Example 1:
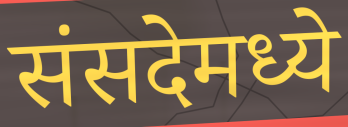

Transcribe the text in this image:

संसदेमध्ये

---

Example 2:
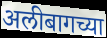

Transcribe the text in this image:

अलीबागच्या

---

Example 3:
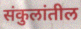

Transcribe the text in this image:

संकुलांतील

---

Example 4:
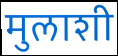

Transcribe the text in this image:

मुलाशी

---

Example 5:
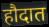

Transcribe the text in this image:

हौदात